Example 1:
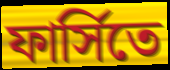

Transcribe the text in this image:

ফার্সিতে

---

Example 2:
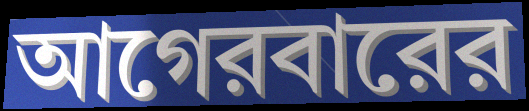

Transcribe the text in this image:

আগেরবারের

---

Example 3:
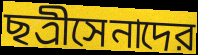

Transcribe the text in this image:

ছত্রীসেনাদের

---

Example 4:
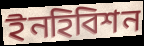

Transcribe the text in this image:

ইনহিবিশন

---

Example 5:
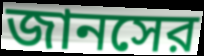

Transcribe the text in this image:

জানসের